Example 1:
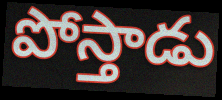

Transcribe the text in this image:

పోస్తాడు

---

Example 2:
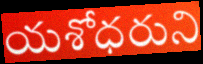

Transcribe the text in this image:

యశోధరుని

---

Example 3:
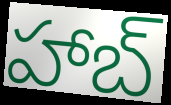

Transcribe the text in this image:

హాబ్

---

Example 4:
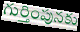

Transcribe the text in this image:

గుర్తింపునకు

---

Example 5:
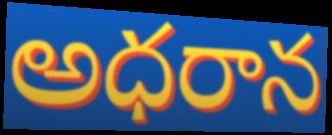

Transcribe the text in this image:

అధరాన